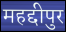
महद्दीपुर